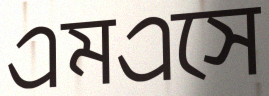
এমএসে